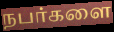
நபர்களை